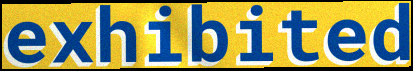
exhibited